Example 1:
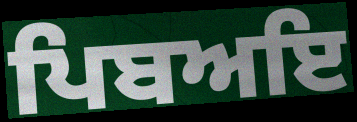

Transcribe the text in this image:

ਪਿਬਅਇ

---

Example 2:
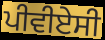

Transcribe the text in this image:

ਪੀਵੀਏਸੀ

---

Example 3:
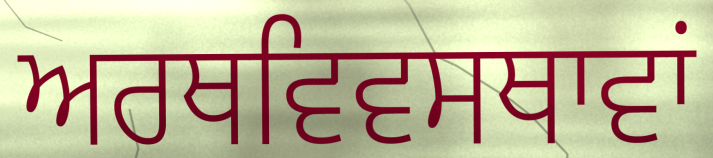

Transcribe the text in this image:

ਅਰਥਵਿਵਸਥਾਵਾਂ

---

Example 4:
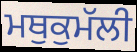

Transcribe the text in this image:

ਮਥੁਕੁਮੱਲੀ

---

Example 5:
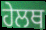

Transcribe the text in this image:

ਹੇਲਥ